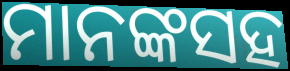
ମାନଙ୍କସହ